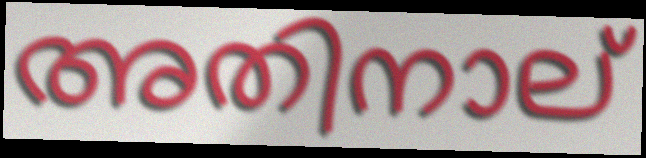
അതിനാല്